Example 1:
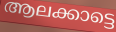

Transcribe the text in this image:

ആലക്കാട്ടെ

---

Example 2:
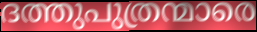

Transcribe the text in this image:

ദത്തുപുത്രന്മാരെ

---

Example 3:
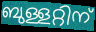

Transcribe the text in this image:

ബുള്ളറ്റിന്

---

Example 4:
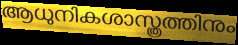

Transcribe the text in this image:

ആധുനികശാസ്ത്രത്തിനും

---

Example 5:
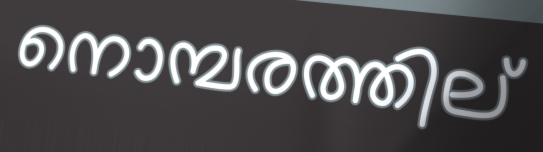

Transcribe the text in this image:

നൊമ്പരത്തില്